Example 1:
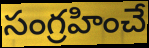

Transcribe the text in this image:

సంగ్రహించే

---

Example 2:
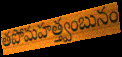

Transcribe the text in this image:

తపోమహత్త్వంబునం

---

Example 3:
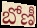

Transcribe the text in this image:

బోణీ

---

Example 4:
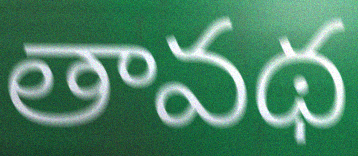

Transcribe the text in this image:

తావథ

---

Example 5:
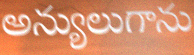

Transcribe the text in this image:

అన్యులుగాను